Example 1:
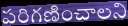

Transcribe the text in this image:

పరిగణించాలని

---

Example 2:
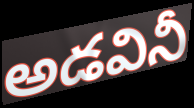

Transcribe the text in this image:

అడవినీ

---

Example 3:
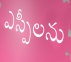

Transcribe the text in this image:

ఎస్పీలను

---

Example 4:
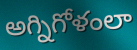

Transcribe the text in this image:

అగ్నిగోళంలా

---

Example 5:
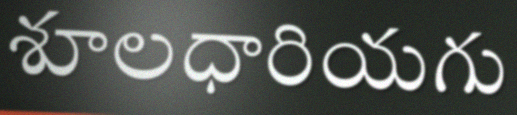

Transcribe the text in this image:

శూలధారియగు